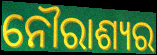
ନୌରାଶ୍ୟର